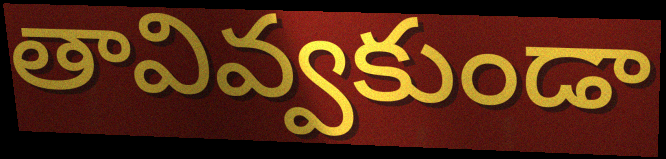
తావివ్వకుండా